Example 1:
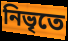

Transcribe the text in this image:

নিভৃতে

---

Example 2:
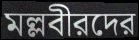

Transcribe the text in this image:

মল্লবীরদের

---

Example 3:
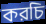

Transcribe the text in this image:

করচি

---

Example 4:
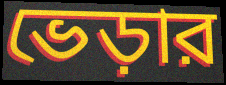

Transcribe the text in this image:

ভেড়ার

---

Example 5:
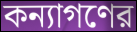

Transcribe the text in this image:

কন্যাগণের